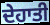
ਦੇਹਾਤੀ